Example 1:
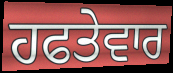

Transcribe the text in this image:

ਹਫਤੇਵਾਰ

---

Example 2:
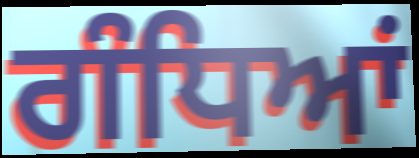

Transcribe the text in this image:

ਗੰਧਿਆਂ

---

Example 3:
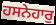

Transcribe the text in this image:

ਹਸਨੇਹਾਰੁ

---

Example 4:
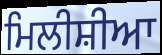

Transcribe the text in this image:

ਮਿਲੀਸ਼ੀਆ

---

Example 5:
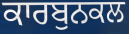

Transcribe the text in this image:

ਕਾਰਬੁਨਕਲ